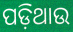
ପଡ଼ିଥାଉ